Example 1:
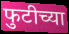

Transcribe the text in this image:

फुटीच्या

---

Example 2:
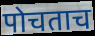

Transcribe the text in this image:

पोचताच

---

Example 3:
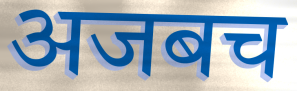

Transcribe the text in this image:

अजबच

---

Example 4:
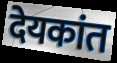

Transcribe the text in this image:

देयकांत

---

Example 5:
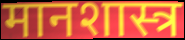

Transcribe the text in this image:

मानशास्त्र